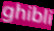
ghibli